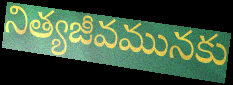
నిత్యజీవమునకు